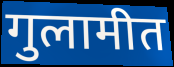
गुलामीत